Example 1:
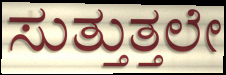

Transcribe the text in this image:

ಸುತ್ತುತ್ತಲೇ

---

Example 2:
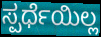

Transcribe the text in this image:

ಸ್ಪರ್ಧೆಯಿಲ್ಲ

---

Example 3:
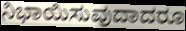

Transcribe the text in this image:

ನಿಭಾಯಿಸುವುದಾದರೂ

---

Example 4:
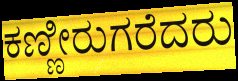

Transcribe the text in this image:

ಕಣ್ಣೀರುಗರೆದರು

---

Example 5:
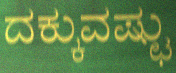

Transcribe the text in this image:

ದಕ್ಕುವಷ್ಟು